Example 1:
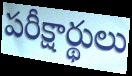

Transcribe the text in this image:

పరీక్షార్థులు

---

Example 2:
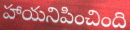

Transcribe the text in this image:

హాయనిపించింది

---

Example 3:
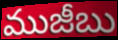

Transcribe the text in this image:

ముజీబు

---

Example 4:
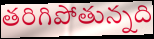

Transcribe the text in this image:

తరిగిపోతున్నది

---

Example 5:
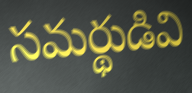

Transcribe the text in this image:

సమర్థుడివి